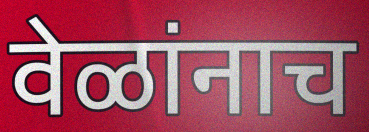
वेळांनाच